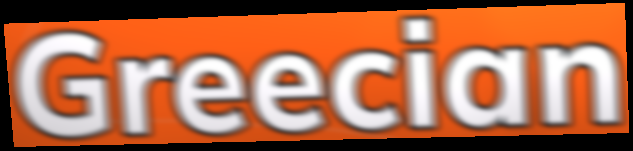
Greecian